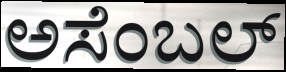
ಅಸೆಂಬಲ್